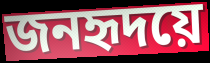
জনহৃদয়ে